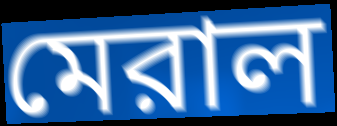
মেরাল